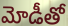
మోడీతో